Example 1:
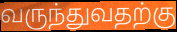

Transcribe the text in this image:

வருந்துவதற்கு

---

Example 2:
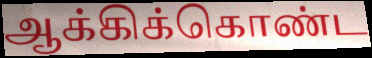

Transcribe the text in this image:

ஆக்கிக்கொண்ட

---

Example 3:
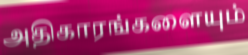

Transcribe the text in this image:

அதிகாரங்களையும்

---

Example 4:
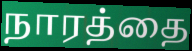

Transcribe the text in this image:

நாரத்தை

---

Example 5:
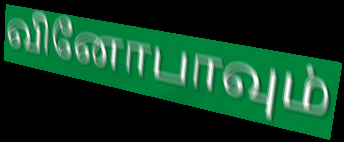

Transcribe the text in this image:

வினோபாவும்